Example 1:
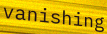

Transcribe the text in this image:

vanishing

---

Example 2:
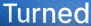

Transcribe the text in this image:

Turned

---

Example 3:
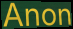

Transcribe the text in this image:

Anon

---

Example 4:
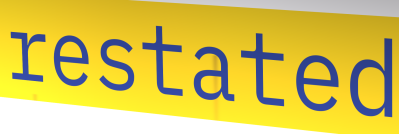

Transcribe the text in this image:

restated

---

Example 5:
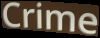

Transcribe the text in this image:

Crime